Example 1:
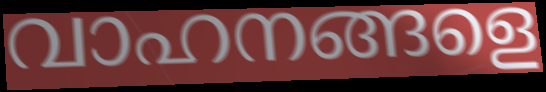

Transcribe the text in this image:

വാഹനങ്ങളെ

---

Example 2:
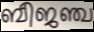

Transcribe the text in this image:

ബീജഞ്ച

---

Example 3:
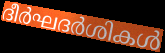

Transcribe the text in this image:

ദീർഘദർശികൾ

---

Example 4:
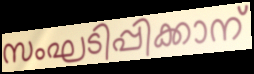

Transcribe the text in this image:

സംഘടിപ്പിക്കാന്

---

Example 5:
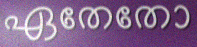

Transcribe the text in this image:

ഏതേതോ